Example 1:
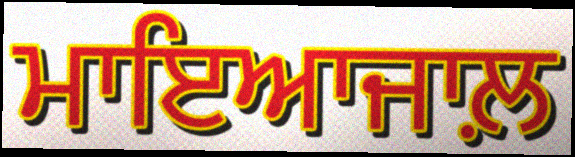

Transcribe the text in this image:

ਮਾਇਆਜਾਲ਼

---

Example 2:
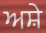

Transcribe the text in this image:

ਅਸ਼ੇ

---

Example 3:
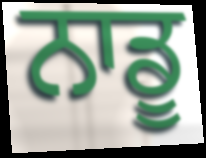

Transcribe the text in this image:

ਨਾਡੂ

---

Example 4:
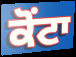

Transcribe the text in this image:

ਕੋਂਟਾ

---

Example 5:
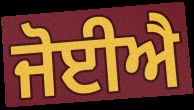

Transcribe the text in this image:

ਜੋਈਐ